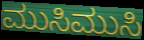
ಮುಸಿಮುಸಿ